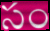
సం